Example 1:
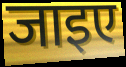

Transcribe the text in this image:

जाइए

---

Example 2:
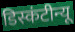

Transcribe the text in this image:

डिस्कंटीन्यू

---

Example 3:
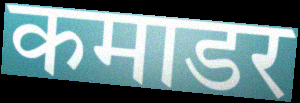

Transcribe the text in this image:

कमाडर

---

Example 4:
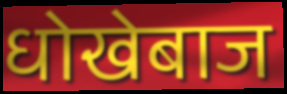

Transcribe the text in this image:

धोखेबाज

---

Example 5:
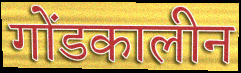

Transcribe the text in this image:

गोंडकालीन